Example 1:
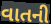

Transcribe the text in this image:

વાતની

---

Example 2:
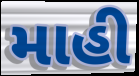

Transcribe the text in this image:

માહી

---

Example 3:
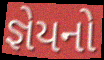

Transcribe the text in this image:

જ્ઞેયનો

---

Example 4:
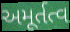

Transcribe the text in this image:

અમૂર્તત્વ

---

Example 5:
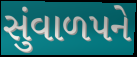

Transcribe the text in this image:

સુંવાળપને